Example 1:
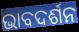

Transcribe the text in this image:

ଭାବଦର୍ଶନ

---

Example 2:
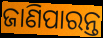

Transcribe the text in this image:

ଜାଣିପାରନ୍ତ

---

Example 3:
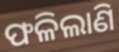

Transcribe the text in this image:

ଫଳିଲାଣି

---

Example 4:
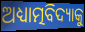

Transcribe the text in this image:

ଅଧ୍ୟାତ୍ମବିଦ୍ୟାକୁ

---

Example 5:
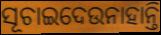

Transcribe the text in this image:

ସୂଚାଇଦେଉନାହାନ୍ତି